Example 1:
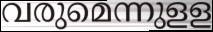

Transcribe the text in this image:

വരുമെന്നുളള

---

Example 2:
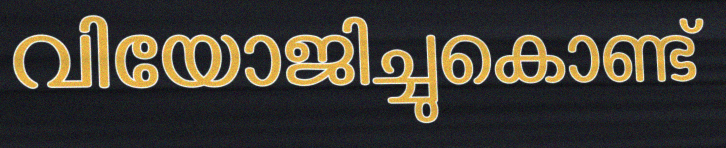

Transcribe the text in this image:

വിയോജിച്ചുകൊണ്ട്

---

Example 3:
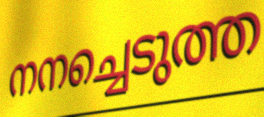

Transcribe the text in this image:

നനച്ചെടുത്ത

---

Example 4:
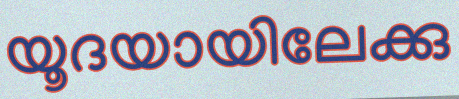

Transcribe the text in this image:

യൂദയായിലേക്കു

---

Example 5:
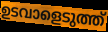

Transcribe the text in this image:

ഉടവാളെടുത്ത്